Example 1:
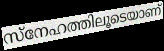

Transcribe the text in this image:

സ്നേഹത്തിലൂടെയാണ്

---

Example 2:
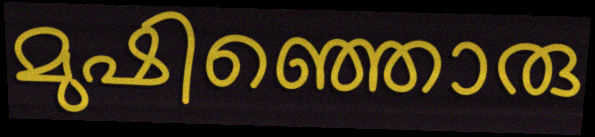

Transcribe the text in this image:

മുഷിഞ്ഞൊരു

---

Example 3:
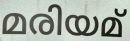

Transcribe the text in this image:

മരിയമ്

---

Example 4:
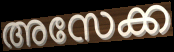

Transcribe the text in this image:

അസേക്ക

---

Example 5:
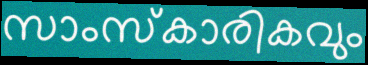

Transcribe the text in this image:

സാംസ്കാരികവും